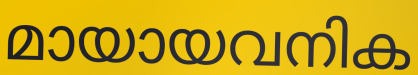
മായായവനിക